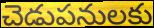
చెడుపనులకు